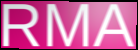
RMA